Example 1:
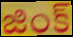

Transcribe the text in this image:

జింక్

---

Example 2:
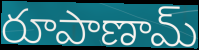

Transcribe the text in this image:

రూపాణామ్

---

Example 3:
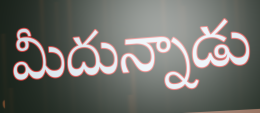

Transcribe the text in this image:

మీదున్నాడు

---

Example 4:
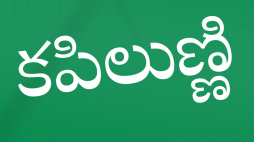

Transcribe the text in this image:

కపిలుణ్ణి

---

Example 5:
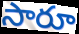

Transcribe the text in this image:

సారూ